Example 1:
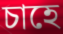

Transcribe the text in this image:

চাহে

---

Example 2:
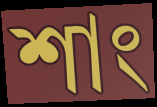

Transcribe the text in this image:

শাং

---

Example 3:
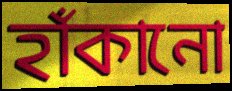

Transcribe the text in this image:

হাঁকানো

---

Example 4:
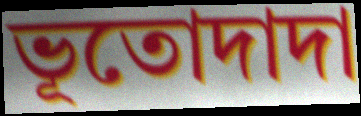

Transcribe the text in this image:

ভূতোদাদা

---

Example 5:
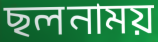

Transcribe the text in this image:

ছলনাময়